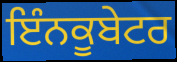
ਇੰਨਕੂਬੇਟਰ